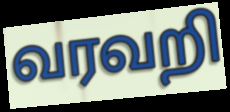
வரவறி